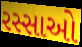
રસ્સાઓ